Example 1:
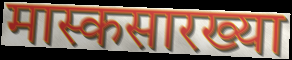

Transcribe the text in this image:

मास्कसारख्या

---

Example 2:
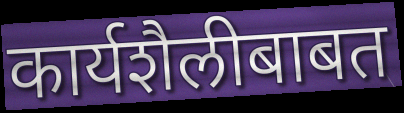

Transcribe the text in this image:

कार्यशैलीबाबत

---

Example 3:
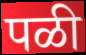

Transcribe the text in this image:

पळी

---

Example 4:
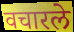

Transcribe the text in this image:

वचारले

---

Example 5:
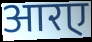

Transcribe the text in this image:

आरए